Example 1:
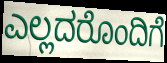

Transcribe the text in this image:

ಎಲ್ಲದರೊಂದಿಗೆ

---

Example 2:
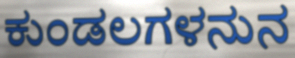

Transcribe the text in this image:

ಕುಂಡಲಗಳನುನ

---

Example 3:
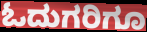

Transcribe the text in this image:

ಓದುಗರಿಗೂ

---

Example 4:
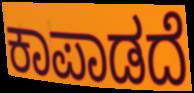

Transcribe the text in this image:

ಕಾಪಾಡದೆ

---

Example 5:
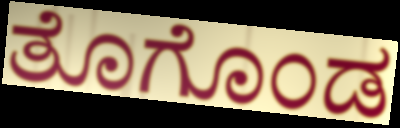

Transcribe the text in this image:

ತೊಗೊಂಡ